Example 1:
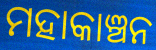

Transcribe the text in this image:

ମହାକାଞ୍ଚନ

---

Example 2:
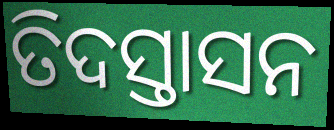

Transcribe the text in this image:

ତିଦସ୍ତାସନ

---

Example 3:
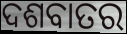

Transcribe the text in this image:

ଦଶବାତର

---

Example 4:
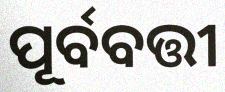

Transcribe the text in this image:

ପୂର୍ବବତ୍ତୀ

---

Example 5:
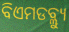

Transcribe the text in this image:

ବିଏମଡବ୍ଲ୍ୟୁ